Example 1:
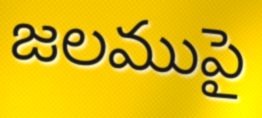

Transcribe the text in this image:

జలముపై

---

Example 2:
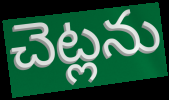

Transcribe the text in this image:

చెట్లను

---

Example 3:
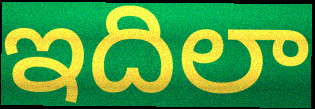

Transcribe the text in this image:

ఇదిలా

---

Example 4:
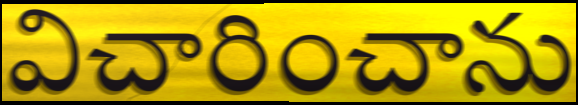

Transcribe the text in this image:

విచారించాను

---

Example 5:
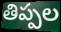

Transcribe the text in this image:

తిప్పల